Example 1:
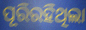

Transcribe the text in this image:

ପୂରିରହିଥିଲା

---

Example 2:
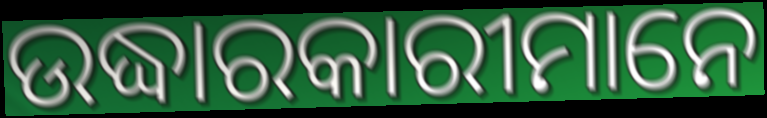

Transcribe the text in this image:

ଉଦ୍ଧାରକାରୀମାନେ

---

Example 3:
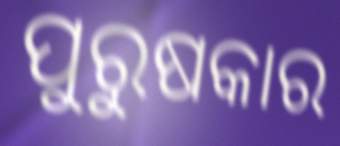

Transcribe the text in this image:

ପୁରୁଷକାର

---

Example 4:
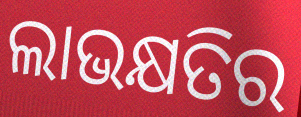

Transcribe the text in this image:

ଲାଭକ୍ଷତିର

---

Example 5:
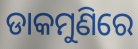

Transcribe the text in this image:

ଡାକମୁଣିରେ